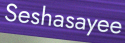
Seshasayee